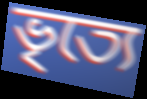
ভৃত্যে